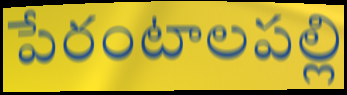
పేరంటాలపల్లి